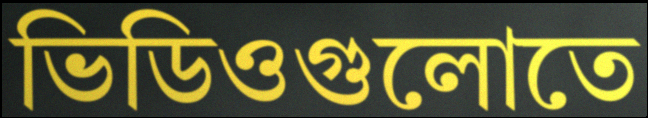
ভিডিওগুলোতে